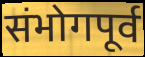
संभोगपूर्व